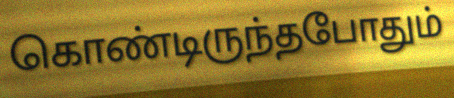
கொண்டிருந்தபோதும்